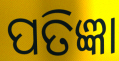
ପତିଜ୍ଞା